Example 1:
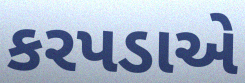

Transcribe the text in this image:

કરપડાએ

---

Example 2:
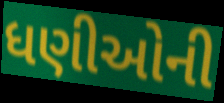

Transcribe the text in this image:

ધણીઓની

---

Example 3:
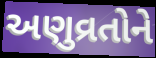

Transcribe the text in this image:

અણુવ્રતોને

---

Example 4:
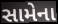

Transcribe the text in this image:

સામેના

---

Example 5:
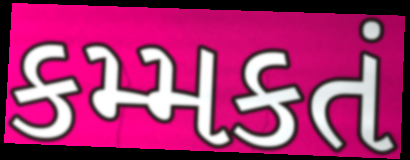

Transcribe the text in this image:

કમ્મકતં